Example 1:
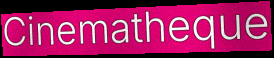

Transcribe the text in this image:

Cinematheque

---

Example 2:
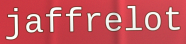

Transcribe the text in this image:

jaffrelot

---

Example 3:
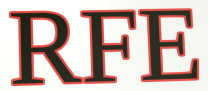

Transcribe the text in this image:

RFE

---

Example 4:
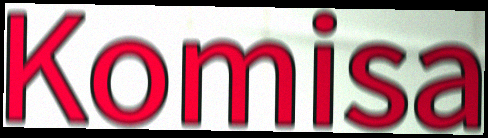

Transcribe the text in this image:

Komisa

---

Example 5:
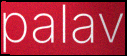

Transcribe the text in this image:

palav